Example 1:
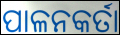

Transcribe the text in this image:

ପାଳନକର୍ତା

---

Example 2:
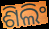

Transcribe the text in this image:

ଶିଲିଂ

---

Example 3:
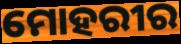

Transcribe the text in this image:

ମୋହରୀର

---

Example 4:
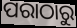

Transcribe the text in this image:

ପରାଠାରୁ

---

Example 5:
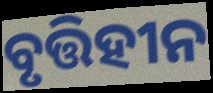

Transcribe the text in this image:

ବୃତ୍ତିହୀନ